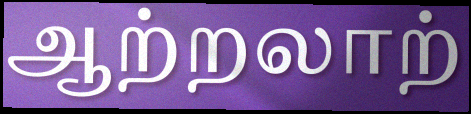
ஆற்றலாற்